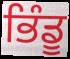
ਭਿੰਡੂ